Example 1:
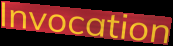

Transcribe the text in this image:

Invocation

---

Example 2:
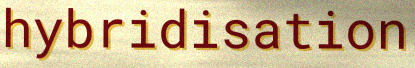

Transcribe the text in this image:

hybridisation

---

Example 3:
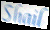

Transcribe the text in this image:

Shail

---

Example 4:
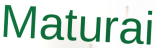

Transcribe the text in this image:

Maturai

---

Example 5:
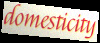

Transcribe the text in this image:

domesticity